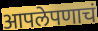
आपलेपणाचं